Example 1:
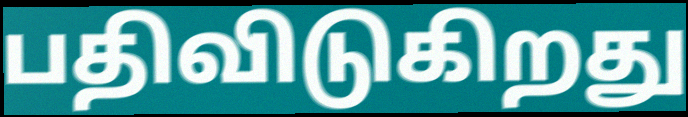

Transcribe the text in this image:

பதிவிடுகிறது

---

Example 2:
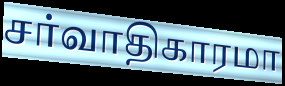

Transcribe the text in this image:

சர்வாதிகாரமா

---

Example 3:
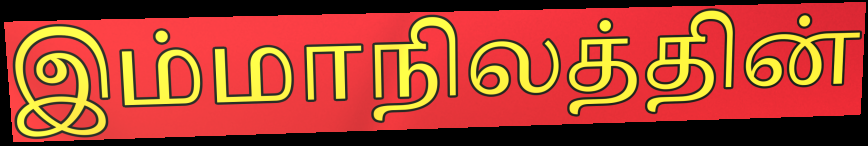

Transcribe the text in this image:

இம்மாநிலத்தின்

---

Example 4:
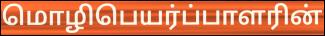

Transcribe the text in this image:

மொழிபெயர்ப்பாளரின்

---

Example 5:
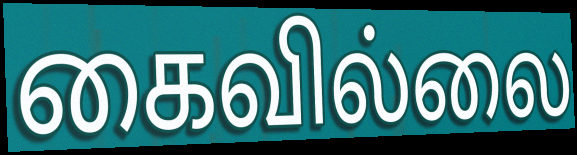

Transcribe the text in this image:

கைவில்லை